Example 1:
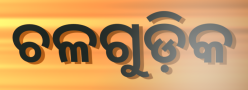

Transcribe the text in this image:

ଚଳଗୁଡ଼ିକ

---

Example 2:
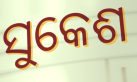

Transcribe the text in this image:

ସୁକେଶ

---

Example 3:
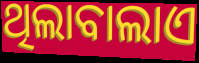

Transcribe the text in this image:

ଥିଲାବାଲାଏ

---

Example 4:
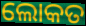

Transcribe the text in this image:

ଲୋକତ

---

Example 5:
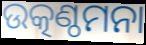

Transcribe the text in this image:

ଉତ୍କଣ୍ଠମନା